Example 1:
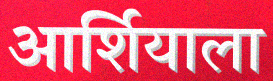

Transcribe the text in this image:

आर्शियाला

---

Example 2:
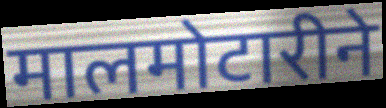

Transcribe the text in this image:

मालमोटारीने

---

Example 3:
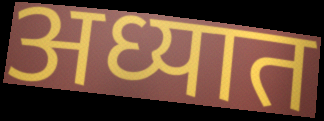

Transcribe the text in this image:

अध्यात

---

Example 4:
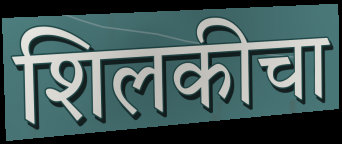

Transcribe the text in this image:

शिलकीचा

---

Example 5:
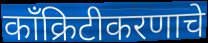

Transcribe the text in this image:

काँक्रिटीकरणाचे